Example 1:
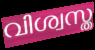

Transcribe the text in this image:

വിശ്വസ്ത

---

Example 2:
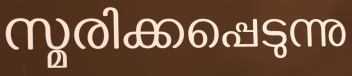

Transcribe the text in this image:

സ്മരിക്കപ്പെടുന്നു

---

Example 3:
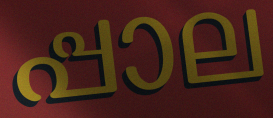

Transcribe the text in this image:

പ്പാല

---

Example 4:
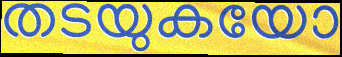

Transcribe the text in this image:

തടയുകയോ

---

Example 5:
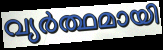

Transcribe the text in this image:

വ്യർത്ഥമായി